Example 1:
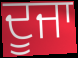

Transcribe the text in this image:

ਦੂਜਾ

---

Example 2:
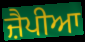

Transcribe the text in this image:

ਜ਼ੈਪੀਆ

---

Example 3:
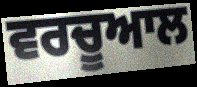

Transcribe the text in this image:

ਵਰਚੂਆਲ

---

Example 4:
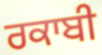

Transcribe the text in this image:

ਰਕਾਬੀ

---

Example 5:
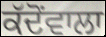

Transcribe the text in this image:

ਕੱਦੋਂਵਾਲਾ